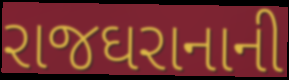
રાજઘરાનાની